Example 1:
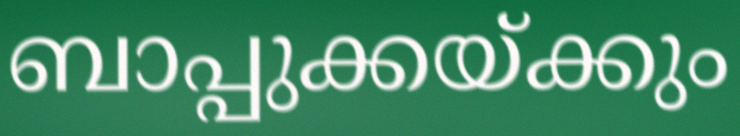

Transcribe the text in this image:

ബാപ്പുക്കയ്ക്കും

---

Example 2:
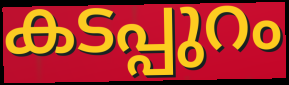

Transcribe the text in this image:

കടപ്പുറം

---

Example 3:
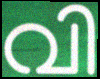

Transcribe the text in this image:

വി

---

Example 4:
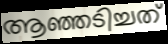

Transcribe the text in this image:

ആഞ്ഞടിച്ചത്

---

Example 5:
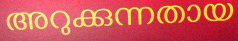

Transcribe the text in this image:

അറുക്കുന്നതായ